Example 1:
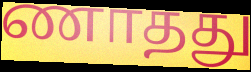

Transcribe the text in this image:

ணாதது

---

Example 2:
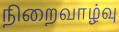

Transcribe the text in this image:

நிறைவாழ்வு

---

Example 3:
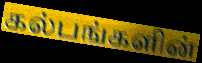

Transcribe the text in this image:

கல்பங்களின்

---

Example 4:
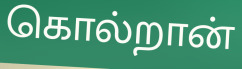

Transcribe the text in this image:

கொல்றான்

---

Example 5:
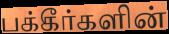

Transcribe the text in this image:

பக்கீர்களின்